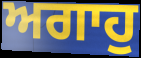
ਅਗਾਹੁ